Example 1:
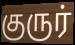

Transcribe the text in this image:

குருர்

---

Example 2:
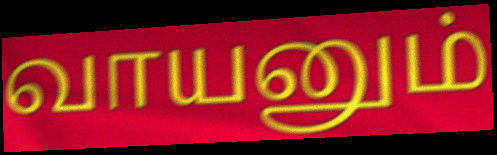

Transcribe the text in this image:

வாயனும்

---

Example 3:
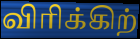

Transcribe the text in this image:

விரிக்கிற்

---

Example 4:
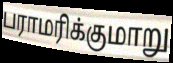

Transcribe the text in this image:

பராமரிக்குமாறு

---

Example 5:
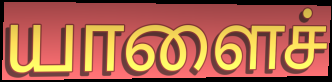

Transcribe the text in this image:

யாளைச்